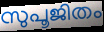
സുപൂജിതം